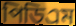
পিডিএম